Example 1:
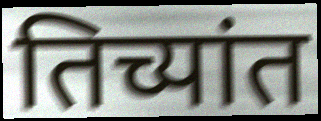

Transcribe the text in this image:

तिच्यांत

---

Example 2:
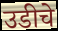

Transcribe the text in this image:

उडीचे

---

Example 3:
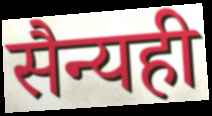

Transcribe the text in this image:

सैन्यही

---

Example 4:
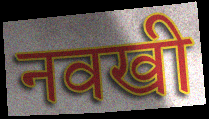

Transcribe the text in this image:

नवखी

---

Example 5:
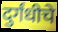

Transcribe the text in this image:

दुर्गंधीचे